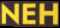
NEH